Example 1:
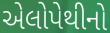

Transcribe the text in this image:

એલોપેથીનો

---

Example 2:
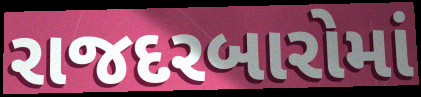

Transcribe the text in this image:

રાજદરબારોમાં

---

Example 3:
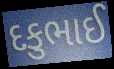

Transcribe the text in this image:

દકુભાઈ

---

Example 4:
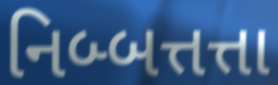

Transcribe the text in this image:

નિબ્બત્તત્તા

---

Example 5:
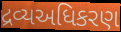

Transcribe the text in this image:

દ્રવ્યઅધિકરણ